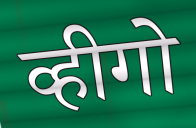
व्हीगो